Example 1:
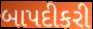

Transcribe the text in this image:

બાપદીકરી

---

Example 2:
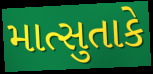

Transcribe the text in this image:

માત્સુતાકે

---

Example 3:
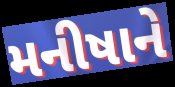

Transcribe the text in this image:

મનીષાને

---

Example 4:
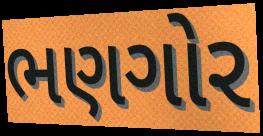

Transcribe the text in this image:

ભણગોર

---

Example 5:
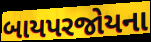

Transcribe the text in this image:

બાયપરજોયના